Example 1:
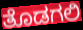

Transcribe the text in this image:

ತೊಡಗಲಿ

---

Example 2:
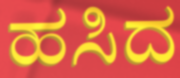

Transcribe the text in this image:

ಹಸಿದ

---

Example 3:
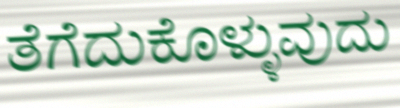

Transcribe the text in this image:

ತೆಗೆದುಕೊಳ್ಳುವುದು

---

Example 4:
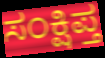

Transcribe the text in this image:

ಸಂಕ್ಷಿಪ್ತ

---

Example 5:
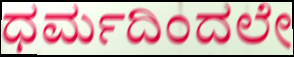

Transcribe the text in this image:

ಧರ್ಮದಿಂದಲೇ